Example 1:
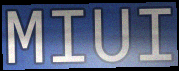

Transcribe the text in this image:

MIUI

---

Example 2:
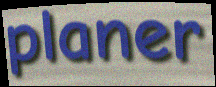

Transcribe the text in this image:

planer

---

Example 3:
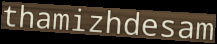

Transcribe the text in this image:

thamizhdesam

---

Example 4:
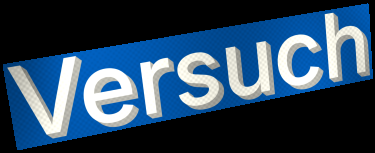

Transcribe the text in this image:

Versuch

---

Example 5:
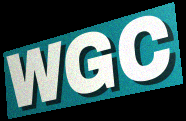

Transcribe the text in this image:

WGC